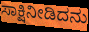
ಸಾಕ್ಷಿನೀಡಿದನು